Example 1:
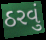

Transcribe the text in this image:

ઠરવું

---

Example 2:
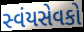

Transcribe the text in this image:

સ્વંયસેવકો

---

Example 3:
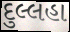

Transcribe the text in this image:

દુલ્લહા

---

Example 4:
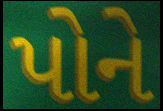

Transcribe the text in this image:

પોને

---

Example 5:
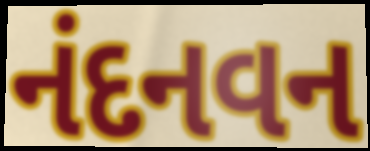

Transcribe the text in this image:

નંદનવન